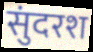
सुंदरश